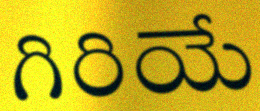
గిరియే